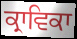
ਕ੍ਰਾਵਿਕਾ